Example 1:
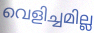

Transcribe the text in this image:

വെളിച്ചമില്ല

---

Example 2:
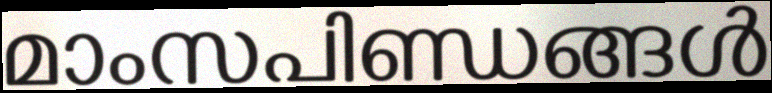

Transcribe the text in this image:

മാംസപിണ്ഡങ്ങൾ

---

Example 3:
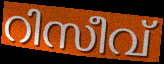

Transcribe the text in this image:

റിസീവ്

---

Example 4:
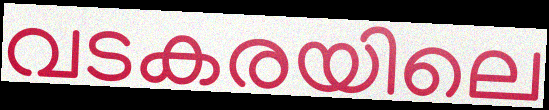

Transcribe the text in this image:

വടകരയിലെ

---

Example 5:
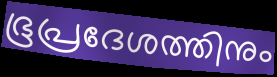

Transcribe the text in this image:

ഭൂപ്രദേശത്തിനും